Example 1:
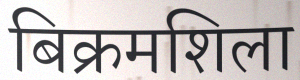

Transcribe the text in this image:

बिक्रमशिला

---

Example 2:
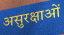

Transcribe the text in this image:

असुरक्षाओं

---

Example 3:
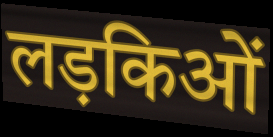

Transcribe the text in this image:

लड़किओं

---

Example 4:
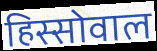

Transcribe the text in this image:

हिस्सोवाल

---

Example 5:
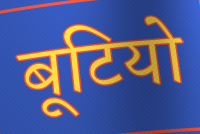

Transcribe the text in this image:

बूटियो